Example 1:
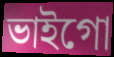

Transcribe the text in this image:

ভাইগো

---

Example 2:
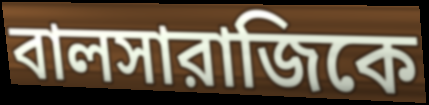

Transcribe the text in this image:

বালসারাজিকে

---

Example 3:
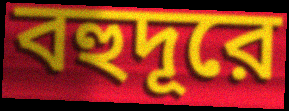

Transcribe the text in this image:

বহুদূরে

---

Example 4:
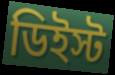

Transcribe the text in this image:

ডিইস্ট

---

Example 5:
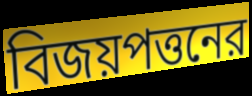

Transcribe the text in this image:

বিজয়পত্তনের